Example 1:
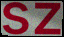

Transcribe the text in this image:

sz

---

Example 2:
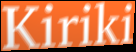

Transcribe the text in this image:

Kiriki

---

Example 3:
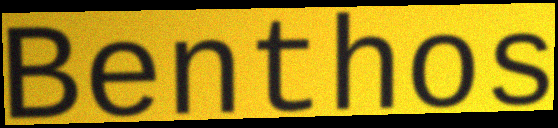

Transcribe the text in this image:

Benthos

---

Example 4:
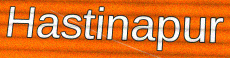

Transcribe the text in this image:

Hastinapur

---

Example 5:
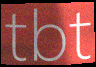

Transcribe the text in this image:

tbt